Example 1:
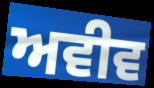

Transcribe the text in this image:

ਅਵੀਵ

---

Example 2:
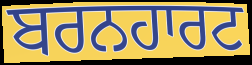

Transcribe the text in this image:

ਬਰਨਹਾਰਟ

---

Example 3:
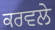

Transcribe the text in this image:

ਕਰਵਲੇ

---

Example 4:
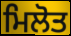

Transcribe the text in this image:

ਮਿਲੋਤ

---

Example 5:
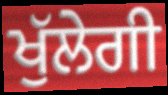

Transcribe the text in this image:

ਖੁੱਲੇਗੀ